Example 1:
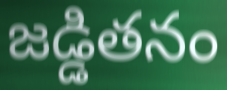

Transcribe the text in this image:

జడ్డితనం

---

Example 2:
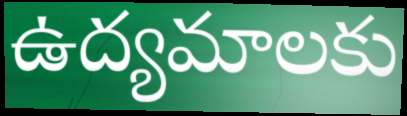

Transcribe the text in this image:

ఉద్యమాలకు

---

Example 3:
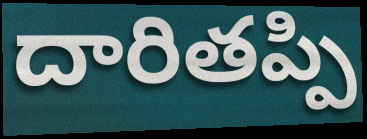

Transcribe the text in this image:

దారితప్పి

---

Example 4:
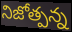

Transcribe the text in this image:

నిజోత్పన్న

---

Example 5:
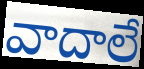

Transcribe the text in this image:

వాదాలే